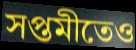
সপ্তমীতেও